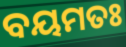
ବୟମତଃ